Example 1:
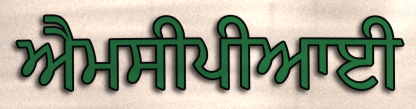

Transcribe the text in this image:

ਐਮਸੀਪੀਆਈ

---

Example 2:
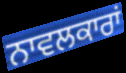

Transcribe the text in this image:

ਨਾਵਲਕਾਰਾਂ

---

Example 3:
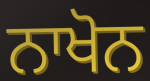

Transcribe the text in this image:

ਨਾਖੋਨ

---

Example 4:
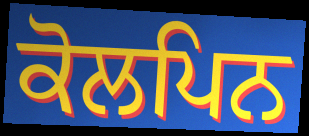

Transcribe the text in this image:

ਕੋਲਪਿਨ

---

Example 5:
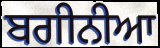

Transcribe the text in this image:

ਬਗੀਨੀਆ